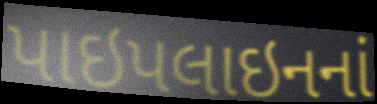
પાઇપલાઇનનાં